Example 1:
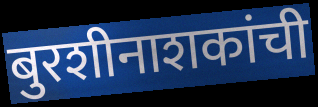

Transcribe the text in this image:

बुरशीनाशकांची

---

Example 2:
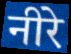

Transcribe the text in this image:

नीरे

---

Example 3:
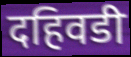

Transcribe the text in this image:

दहिवडी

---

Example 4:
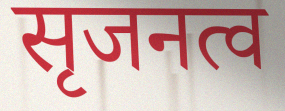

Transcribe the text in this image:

सृजनत्व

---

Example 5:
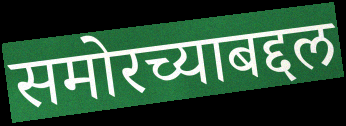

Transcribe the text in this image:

समोरच्याबद्दल